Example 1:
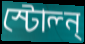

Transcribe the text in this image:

স্টোল্ন্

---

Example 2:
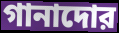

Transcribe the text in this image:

গানাদোর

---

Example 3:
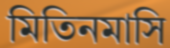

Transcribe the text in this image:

মিতিনমাসি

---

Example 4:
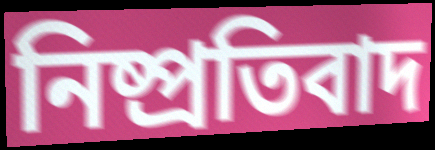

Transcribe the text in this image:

নিষ্প্রতিবাদ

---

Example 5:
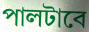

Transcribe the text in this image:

পালটাবে